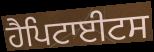
ਹੈਪਿਟਾਈਟਸ